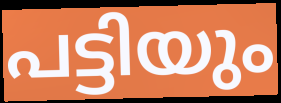
പട്ടിയും